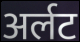
अर्लट